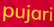
pujari